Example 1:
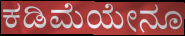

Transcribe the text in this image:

ಕಡಿಮೆಯೇನೂ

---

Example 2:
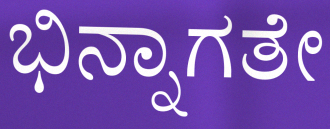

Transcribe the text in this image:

ಭಿನ್ನಾಗತೇ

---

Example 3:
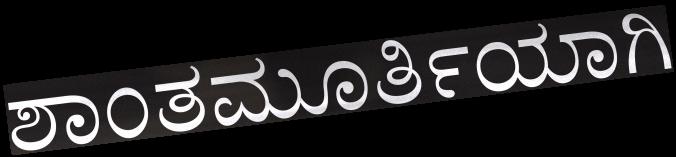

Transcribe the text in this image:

ಶಾಂತಮೂರ್ತಿಯಾಗಿ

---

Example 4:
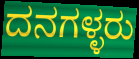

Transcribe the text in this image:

ದನಗಳ್ಳರು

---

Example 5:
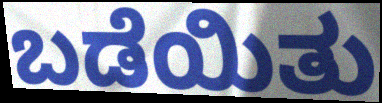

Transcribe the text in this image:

ಬಡೆಯಿತು